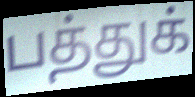
பத்துக்